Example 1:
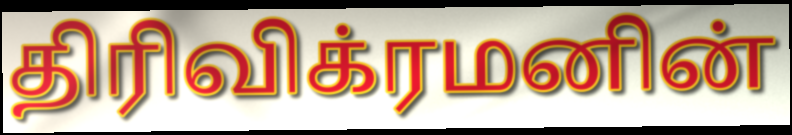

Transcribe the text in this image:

திரிவிக்ரமனின்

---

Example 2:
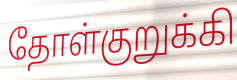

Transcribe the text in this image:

தோள்குறுக்கி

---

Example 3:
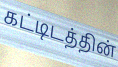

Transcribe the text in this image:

கட்டிடத்தின்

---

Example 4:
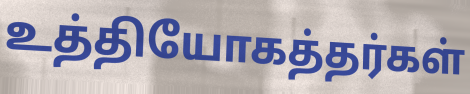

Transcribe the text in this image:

உத்தியோகத்தர்கள்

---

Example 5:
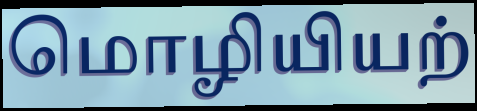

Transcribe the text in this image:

மொழியியற்